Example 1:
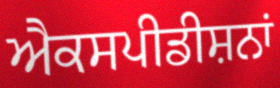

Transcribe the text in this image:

ਐਕਸਪੀਡੀਸ਼ਨਾਂ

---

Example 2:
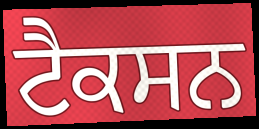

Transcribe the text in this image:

ਟੈਕਸਨ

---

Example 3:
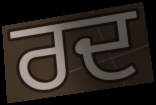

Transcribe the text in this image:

ਰਦ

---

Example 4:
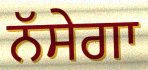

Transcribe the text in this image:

ਨੱਸੇਗਾ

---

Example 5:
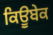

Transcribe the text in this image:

ਕਿਊਬੇਕ